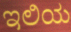
ಇಲಿಯ